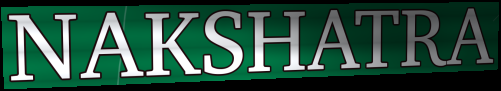
NAKSHATRA